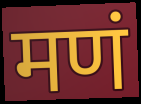
मणं